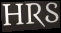
HRS